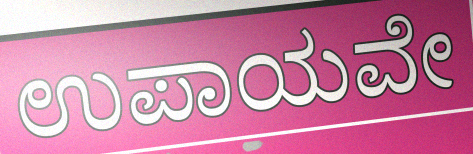
ಉಪಾಯವೇ